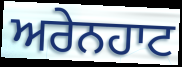
ਅਰੇਨਹਾਟ